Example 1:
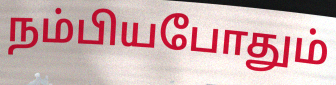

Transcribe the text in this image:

நம்பியபோதும்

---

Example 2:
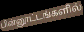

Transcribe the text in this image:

பின்னூட்டங்களில்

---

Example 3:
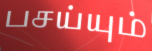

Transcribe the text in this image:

பசய்யும்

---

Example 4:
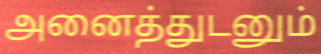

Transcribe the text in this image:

அனைத்துடனும்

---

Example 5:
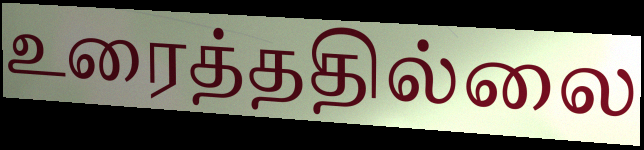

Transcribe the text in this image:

உரைத்ததில்லை